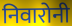
निवारोनी